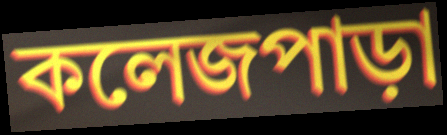
কলেজপাড়া